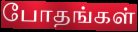
போதங்கள்